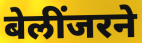
बेलींजरने